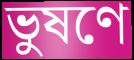
ভুষণে